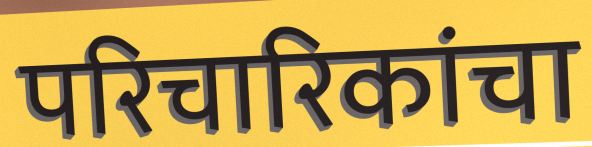
परिचारिकांचा